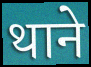
थाने